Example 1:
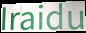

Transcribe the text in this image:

Iraidu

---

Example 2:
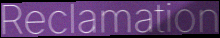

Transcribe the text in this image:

Reclamation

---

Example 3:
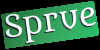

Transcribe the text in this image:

Sprue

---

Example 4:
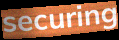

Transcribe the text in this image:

securing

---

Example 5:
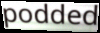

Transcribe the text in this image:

podded